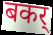
बकर्